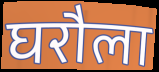
घरौला